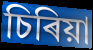
চিৰিয়া